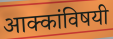
आक्कांविषयी